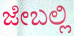
ಜೇಬಲ್ಲಿ